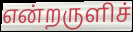
என்றருளிச்